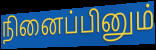
நினைப்பினும்